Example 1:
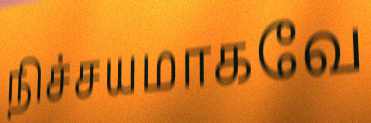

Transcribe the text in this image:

நிச்சயமாகவே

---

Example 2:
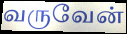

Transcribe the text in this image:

வருவேன்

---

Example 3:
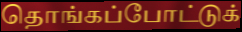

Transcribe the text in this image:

தொங்கப்போட்டுக்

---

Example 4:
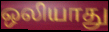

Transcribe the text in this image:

ஒலியாது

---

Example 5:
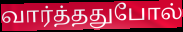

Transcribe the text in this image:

வார்த்ததுபோல்